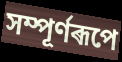
সম্পূৰ্ণৰূপে